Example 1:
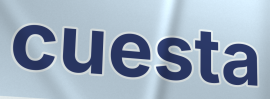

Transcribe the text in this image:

cuesta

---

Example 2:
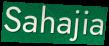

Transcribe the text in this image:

Sahajia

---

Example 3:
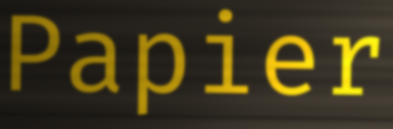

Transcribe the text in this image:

Papier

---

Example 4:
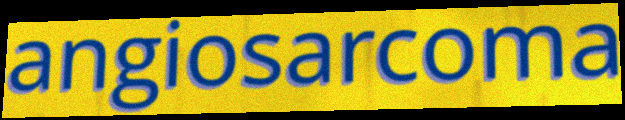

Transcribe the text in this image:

angiosarcoma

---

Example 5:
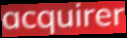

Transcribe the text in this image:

acquirer